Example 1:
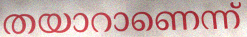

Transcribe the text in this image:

തയാറാണെന്ന്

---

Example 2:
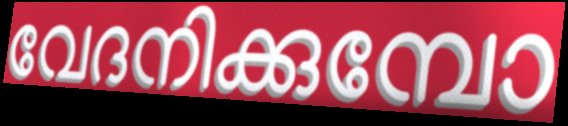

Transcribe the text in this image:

വേദനിക്കുമ്പോ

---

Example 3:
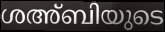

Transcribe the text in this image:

ശഅ്ബിയുടെ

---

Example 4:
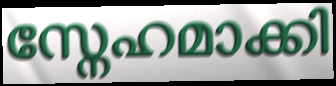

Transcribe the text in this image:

സ്നേഹമാക്കി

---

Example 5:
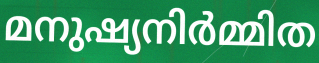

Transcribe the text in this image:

മനുഷ്യനിർമ്മിത